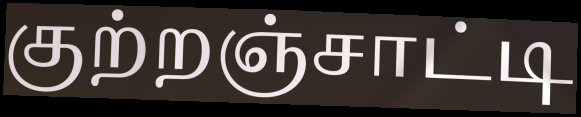
குற்றஞ்சாட்டி